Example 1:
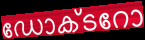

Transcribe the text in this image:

ഡോക്ടറോ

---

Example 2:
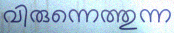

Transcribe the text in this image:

വിരുന്നെത്തുന്ന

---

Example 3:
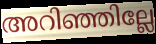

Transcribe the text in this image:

അറിഞ്ഞില്ലേ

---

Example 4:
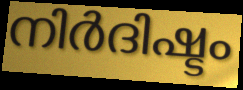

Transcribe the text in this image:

നിർദിഷ്ടം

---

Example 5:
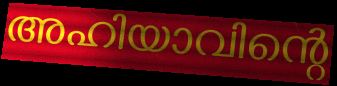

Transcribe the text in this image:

അഹിയാവിന്റെ